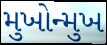
મુખોન્મુખ